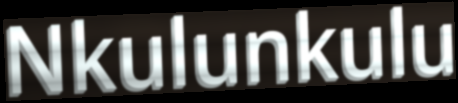
Nkulunkulu